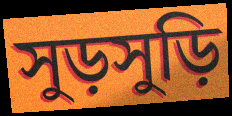
সুড়সুড়ি